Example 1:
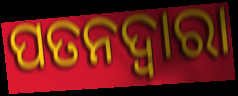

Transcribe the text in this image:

ପତନଦ୍ୱାରା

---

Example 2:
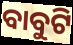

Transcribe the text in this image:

ବାବୁଟି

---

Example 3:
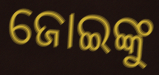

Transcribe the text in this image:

ଜୋଇଙ୍କୁ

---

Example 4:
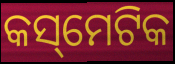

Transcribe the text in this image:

କସ୍‌ମେଟିକ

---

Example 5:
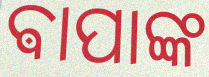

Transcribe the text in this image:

ଵାପାଙ୍କ